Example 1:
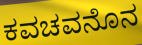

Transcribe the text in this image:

ಕವಚವನೊನ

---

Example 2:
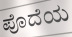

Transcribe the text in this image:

ಪೊದೆಯ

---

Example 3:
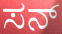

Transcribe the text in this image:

ಸನ್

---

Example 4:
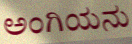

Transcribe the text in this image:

ಅಂಗಿಯನು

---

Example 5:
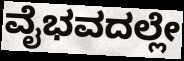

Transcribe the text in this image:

ವೈಭವದಲ್ಲೇ